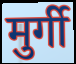
मुर्गी